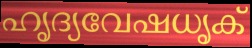
ഹൃദ്യവേഷധൃക്